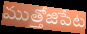
ముత్తోజిపేట